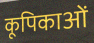
कूपिकाओं